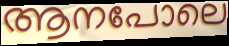
ആനപോലെ